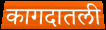
कागदातली